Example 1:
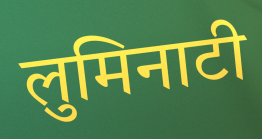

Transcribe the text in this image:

लुमिनाटी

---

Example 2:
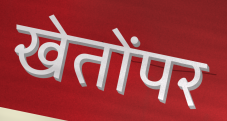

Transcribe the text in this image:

खेतोंपर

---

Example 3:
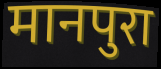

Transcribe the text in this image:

मानपुरा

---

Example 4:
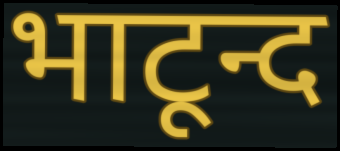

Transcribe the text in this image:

भाटून्द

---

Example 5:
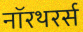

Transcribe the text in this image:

नॉरथरर्स